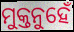
ମୁକ୍ତନୁହେଁ